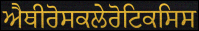
ਐਥੀਰੋਸਕਲੇਰੋਟਿਕਸਿਸ